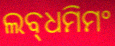
ଲବ୍‌ଧମିମଂ